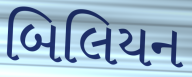
બિલિયન